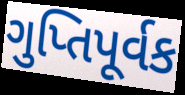
ગુપ્તિપૂર્વક